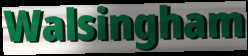
Walsingham